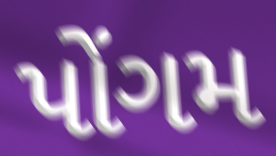
પોંગમ